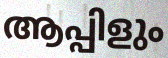
ആപ്പിളും